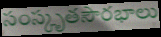
సంస్కృతసౌరభాలు